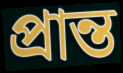
প্রান্ত